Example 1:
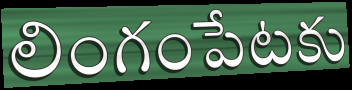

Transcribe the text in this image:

లింగంపేటకు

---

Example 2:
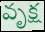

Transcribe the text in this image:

వృక్ష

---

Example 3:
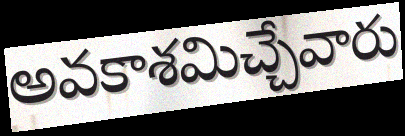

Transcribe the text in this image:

అవకాశమిచ్చేవారు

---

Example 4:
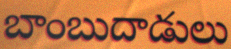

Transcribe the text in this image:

బాంబుదాడులు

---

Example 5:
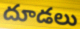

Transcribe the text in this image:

దూడలు